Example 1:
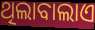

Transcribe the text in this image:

ଥିଲାବାଲାଏ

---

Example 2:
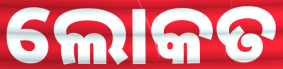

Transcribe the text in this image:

ଲୋକତ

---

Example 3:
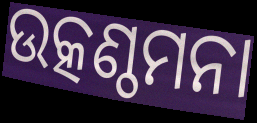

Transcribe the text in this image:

ଉତ୍କଣ୍ଠମନା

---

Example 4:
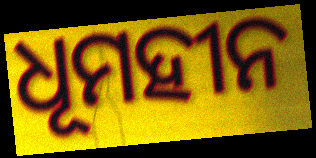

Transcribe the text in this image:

ଧୂମହୀନ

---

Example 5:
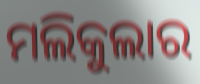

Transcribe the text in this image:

ମଲିକୁଲାର